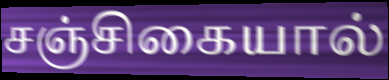
சஞ்சிகையால்